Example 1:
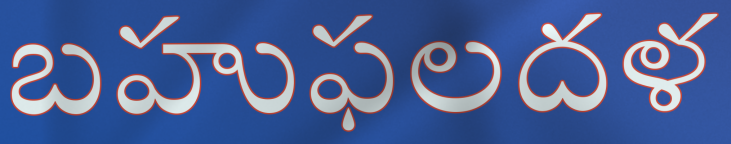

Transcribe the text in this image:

బహుఫలదళ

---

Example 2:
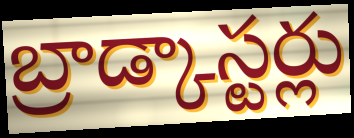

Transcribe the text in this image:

బ్రాడ్కాస్టర్లు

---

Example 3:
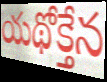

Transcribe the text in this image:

యథోక్తేన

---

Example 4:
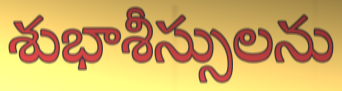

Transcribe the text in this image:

శుభాశీస్సులను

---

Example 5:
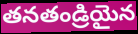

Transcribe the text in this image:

తనతండ్రియైన